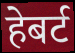
हेबर्ट